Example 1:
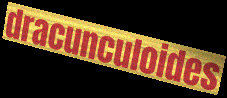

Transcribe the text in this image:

dracunculoides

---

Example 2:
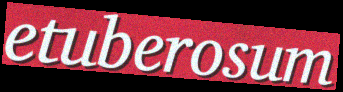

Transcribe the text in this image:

etuberosum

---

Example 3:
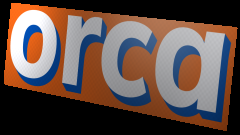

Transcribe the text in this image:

orca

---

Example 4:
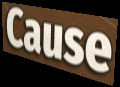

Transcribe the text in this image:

Cause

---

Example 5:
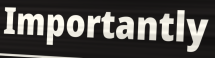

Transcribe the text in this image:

Importantly